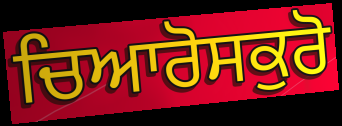
ਚਿਆਰੋਸਕੁਰੋ